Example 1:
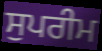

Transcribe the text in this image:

ਸੁਪਰੀਮ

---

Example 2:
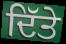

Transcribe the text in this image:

ਦਿੱਤੇ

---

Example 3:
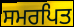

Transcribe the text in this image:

ਸਮਰਪਿਤ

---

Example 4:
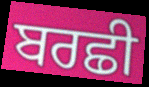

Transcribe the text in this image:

ਬਰਛੀ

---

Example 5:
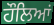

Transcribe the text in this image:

ਹੌਲਿਆਂ